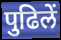
पुढिलें